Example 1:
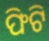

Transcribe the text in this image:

ଫିଟି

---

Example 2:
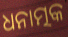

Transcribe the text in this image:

ଧନାତ୍ମକ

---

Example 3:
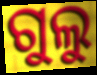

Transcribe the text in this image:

ଗୁଲୁ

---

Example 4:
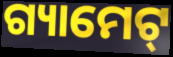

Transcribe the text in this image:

ଗ୍ୟାମେଟ୍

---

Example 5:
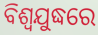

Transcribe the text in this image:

ବିଶ୍ବଯୁଦ୍ଧରେ